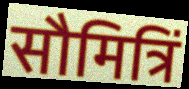
सौमित्रिं